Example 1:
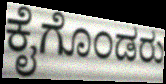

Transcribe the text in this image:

ಕೈಗೊಂಡರು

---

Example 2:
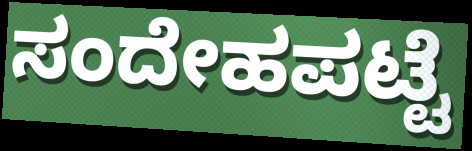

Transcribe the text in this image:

ಸಂದೇಹಪಟ್ಟೆ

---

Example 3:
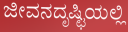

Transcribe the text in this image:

ಜೀವನದೃಷ್ಟಿಯಲ್ಲಿ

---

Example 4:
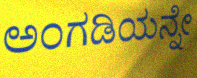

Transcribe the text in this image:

ಅಂಗಡಿಯನ್ನೇ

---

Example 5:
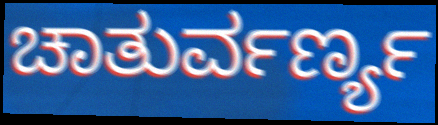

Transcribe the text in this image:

ಚಾತುರ್ವರ್ಣ್ಯ